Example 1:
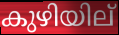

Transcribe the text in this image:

കുഴിയില്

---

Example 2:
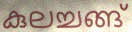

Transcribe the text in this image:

കുലച്ചങ്ങ്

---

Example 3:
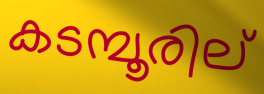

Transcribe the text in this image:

കടമ്പൂരില്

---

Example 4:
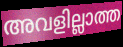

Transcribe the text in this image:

അവളില്ലാത്ത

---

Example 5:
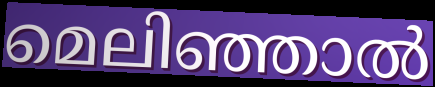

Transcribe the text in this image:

മെലിഞ്ഞാൽ